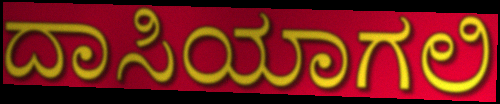
ದಾಸಿಯಾಗಲಿ